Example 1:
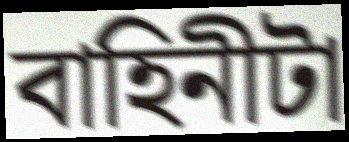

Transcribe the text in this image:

বাহিনীটা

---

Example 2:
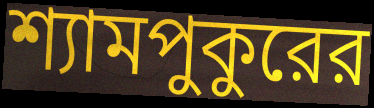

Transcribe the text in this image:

শ্যামপুকুরের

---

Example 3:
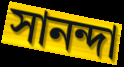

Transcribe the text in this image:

সানন্দা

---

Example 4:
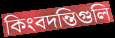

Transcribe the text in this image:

কিংবদন্তিগুলি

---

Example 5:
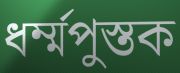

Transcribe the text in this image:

ধর্ম্মপুস্তক